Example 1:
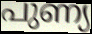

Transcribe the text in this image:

പുണ്യ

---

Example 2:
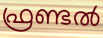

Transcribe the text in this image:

ഫ്രണ്ടൽ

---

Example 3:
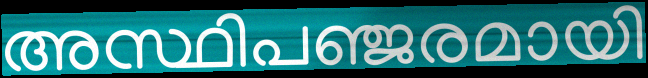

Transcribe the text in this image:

അസ്ഥിപഞ്ജരമായി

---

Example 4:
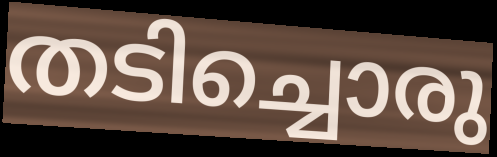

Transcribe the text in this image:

തടിച്ചൊരു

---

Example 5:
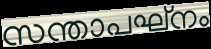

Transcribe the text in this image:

സന്താപഘ്നം